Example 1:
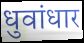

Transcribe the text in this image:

धुवांधार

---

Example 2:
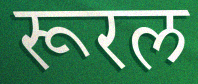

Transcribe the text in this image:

रूरल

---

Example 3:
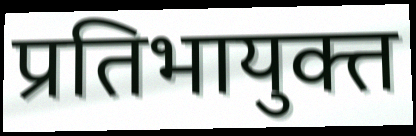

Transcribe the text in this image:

प्रतिभायुक्त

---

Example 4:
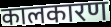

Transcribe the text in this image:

कालकारण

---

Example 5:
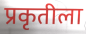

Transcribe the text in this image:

प्रकृतीला